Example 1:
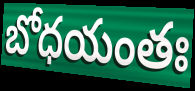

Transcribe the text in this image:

బోధయంతః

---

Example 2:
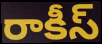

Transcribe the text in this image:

రాకీస్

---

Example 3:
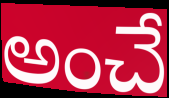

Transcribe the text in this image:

అంచే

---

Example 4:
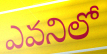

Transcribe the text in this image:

ఎవనిలో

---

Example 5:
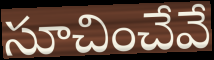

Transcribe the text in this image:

సూచించేవే